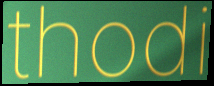
thodi